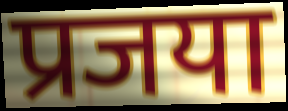
प्रजया